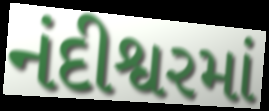
નંદીશ્વરમાં